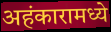
अहंकारामध्ये